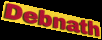
Debnath